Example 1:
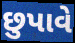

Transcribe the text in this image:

છુપાવે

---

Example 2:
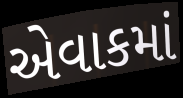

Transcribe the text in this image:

એવાકમાં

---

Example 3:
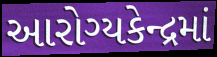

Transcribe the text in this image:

આરોગ્યકેન્દ્રમાં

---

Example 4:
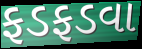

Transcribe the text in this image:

ફડફડવા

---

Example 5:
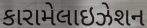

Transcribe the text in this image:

કારામેલાઇઝેશન